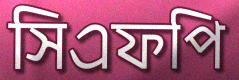
সিএফপি